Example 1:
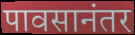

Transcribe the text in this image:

पावसानंतर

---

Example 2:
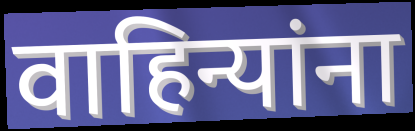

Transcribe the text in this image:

वाहिन्यांना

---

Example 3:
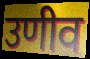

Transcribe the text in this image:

उणीव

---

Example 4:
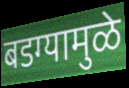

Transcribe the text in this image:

बडग्यामुळे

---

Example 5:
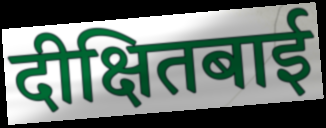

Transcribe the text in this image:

दीक्षितबाई